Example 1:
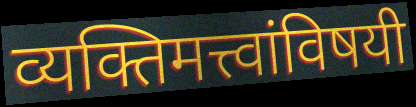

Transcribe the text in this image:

व्यक्तिमत्त्वांविषयी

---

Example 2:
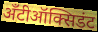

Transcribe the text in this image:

अँटीऑक्सिडंट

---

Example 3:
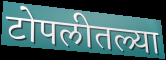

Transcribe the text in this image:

टोपलीतल्या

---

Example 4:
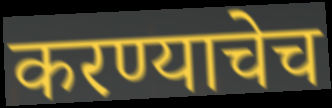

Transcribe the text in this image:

करण्याचेच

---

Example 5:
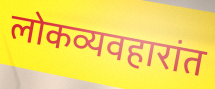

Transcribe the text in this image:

लोकव्यवहारांत